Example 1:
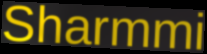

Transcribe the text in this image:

Sharmmi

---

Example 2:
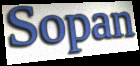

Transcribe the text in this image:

Sopan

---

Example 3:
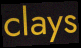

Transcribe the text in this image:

clays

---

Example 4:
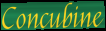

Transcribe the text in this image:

Concubine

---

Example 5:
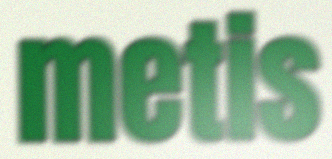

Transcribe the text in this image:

metis